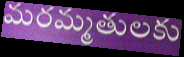
మరమ్మతులకు